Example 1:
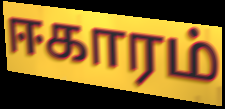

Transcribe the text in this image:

ஈகாரம்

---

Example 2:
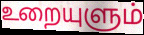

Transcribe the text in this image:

உறையுளும்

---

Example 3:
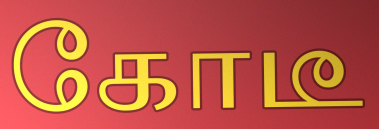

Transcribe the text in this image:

கோடீ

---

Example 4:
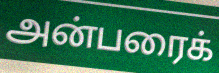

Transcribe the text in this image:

அன்பரைக்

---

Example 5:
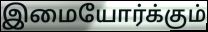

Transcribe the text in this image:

இமையோர்க்கும்